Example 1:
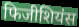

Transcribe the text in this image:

फिजीशियंस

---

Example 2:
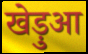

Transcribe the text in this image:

खेड़ुआ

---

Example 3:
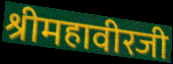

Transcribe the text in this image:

श्रीमहावीरजी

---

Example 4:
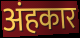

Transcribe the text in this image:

अंहकार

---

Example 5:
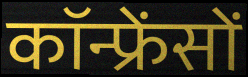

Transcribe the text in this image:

कॉन्फ्रेंसों